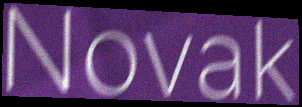
Novak